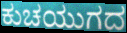
ಕುಚಯುಗದ